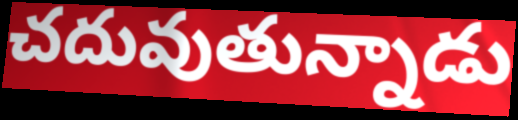
చదువుతున్నాడు